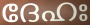
ദേഹഃ